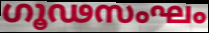
ഗൂഢസംഘം